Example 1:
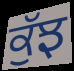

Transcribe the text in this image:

ਕੁੱਝ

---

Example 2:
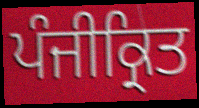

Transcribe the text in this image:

ਪੰਜੀਕ੍ਰਿਤ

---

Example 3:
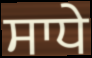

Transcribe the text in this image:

ਸਾਧੇ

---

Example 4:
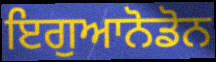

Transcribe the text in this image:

ਇਗੁਆਨੋਡੋਨ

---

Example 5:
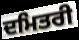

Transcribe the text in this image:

ਦਮਿਤਰੀ